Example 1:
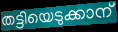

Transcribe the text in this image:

തട്ടിയെടുക്കാന്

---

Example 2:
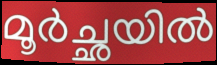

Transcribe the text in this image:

മൂർച്ഛയിൽ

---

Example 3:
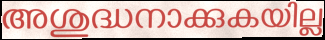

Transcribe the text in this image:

അശുദ്ധനാക്കുകയില്ല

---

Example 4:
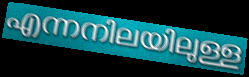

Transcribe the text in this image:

എന്നനിലയിലുള്ള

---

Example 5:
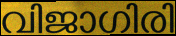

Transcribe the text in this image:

വിജാഗിരി